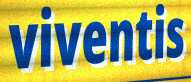
viventis